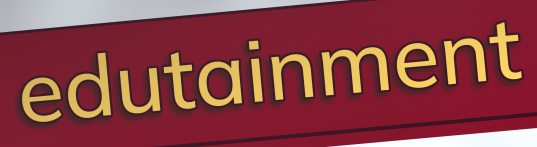
edutainment